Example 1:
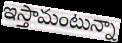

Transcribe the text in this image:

ఇస్తామంటున్నా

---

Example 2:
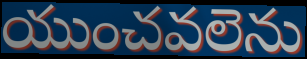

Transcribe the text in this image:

యుంచవలెను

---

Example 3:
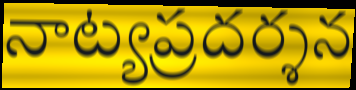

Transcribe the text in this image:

నాట్యప్రదర్శన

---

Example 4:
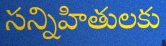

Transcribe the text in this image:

సన్నిహితులకు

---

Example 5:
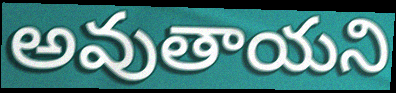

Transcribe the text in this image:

అవుతాయని